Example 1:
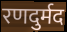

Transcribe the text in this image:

रणदुर्मद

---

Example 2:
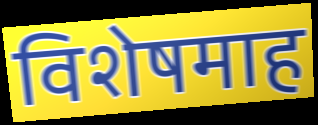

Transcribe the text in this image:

विशेषमाह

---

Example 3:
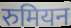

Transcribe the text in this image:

रुमियन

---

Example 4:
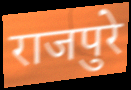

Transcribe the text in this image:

राजपुरे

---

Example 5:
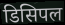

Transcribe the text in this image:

डिसिपल